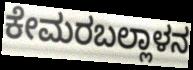
ಕೇಮರಬಲ್ಲಾಳನ